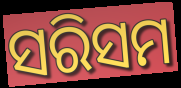
ସରିସମ